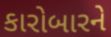
કારોબારને